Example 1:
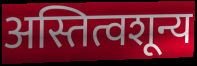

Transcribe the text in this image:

अस्तित्वशून्य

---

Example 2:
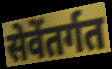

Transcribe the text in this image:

सेवेंतर्गत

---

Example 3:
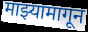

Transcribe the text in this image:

माझ्यामागून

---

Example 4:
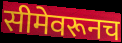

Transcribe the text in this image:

सीमेवरूनच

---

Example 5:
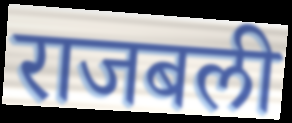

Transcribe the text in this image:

राजबली